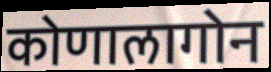
कोणालागोन